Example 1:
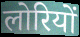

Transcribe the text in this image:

लोरियों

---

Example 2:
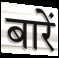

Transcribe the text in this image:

बारें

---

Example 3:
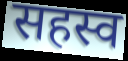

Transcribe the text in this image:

सहस्व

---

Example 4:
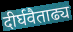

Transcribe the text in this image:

दीर्घवैताढ्य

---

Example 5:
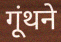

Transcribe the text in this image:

गूंथने